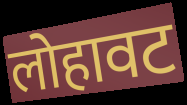
लोहावट